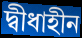
দ্বীধাহীন